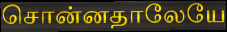
சொன்னதாலேயே